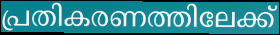
പ്രതികരണത്തിലേക്ക്